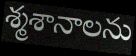
శ్మశానాలను